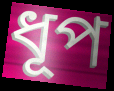
ধূপ